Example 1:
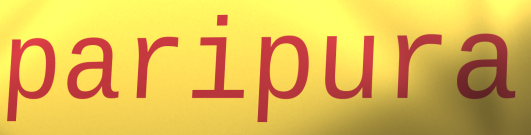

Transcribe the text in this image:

paripura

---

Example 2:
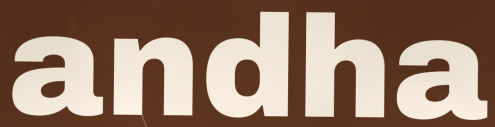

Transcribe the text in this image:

andha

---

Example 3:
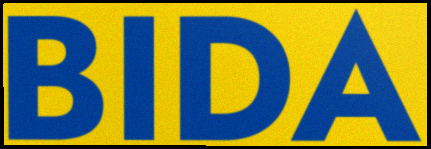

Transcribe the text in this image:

BIDA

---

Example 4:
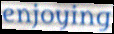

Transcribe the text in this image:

enjoying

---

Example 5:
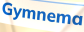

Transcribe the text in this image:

Gymnema